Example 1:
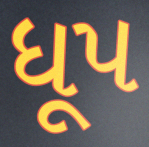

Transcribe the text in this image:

ધૂપ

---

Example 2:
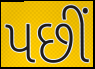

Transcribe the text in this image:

પછીં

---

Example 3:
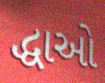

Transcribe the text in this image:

દ્ધાઓ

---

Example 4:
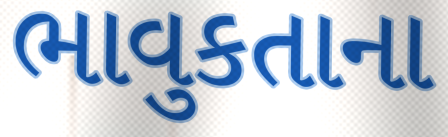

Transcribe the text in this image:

ભાવુકતાના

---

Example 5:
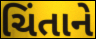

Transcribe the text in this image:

ચિંતાને